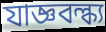
যাজ্ঞবল্ক্য